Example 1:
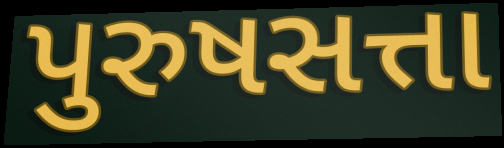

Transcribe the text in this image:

પુરુષસત્તા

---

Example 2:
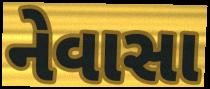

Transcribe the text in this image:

નેવાસા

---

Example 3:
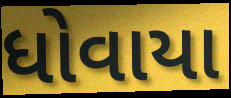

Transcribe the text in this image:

ધોવાયા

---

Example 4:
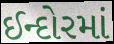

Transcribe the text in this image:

ઈન્દોરમાં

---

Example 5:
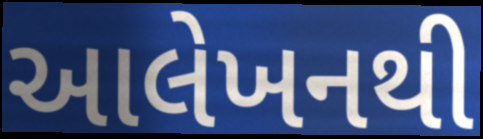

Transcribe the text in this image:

આલેખનથી